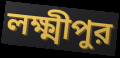
লক্ষ্মীপুর